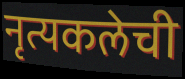
नृत्यकलेची